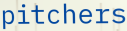
pitchers